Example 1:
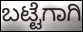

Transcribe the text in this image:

ಬಟ್ಟೆಗಾಗಿ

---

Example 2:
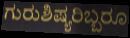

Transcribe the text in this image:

ಗುರುಶಿಷ್ಯರಿಬ್ಬರೂ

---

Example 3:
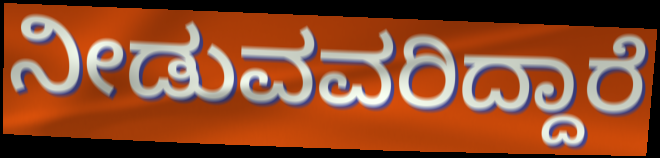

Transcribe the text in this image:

ನೀಡುವವರಿದ್ದಾರೆ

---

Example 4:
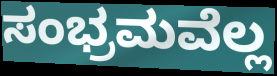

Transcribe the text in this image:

ಸಂಭ್ರಮವೆಲ್ಲ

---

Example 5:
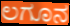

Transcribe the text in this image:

ಲಗೂನ